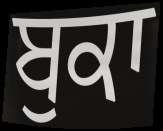
ਬੁਕਾ